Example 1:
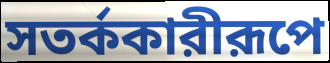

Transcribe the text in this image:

সতর্ককারীরূপে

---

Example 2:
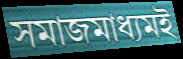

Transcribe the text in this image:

সমাজমাধ্যমই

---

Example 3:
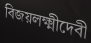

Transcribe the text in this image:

বিজয়লক্ষ্মীদেবী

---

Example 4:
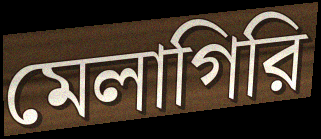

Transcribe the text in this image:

মেলাগিরি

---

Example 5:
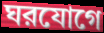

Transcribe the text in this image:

ঘরযোগে